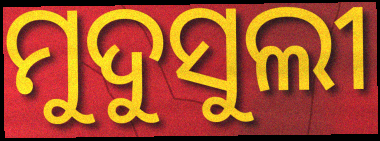
ମୁଦୁସୁଲୀ